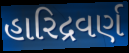
હારિદ્રવર્ણ